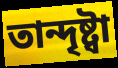
তান্দৃষ্ট্বা